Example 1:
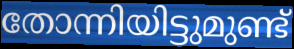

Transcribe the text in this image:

തോന്നിയിട്ടുമുണ്ട്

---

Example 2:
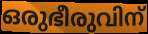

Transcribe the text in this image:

ഒരുഭീരുവിന്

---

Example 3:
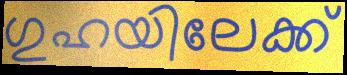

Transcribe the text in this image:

ഗുഹയിലേക്ക്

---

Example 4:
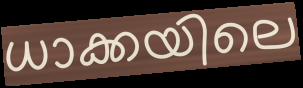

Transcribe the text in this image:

ധാക്കയിലെ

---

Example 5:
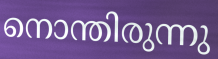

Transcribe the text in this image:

നൊന്തിരുന്നു